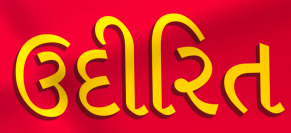
ઉદીરિત